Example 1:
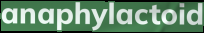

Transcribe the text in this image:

anaphylactoid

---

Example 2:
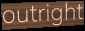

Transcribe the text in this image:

outright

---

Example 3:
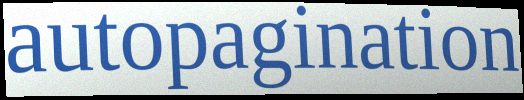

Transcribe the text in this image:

autopagination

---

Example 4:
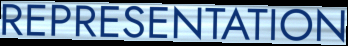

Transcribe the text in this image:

REPRESENTATION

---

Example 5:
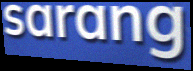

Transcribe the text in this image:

sarang